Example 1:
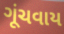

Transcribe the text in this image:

ગૂંચવાય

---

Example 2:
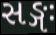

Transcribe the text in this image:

સઙ્ગઃ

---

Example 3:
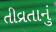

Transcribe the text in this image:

તીવ્રતાનું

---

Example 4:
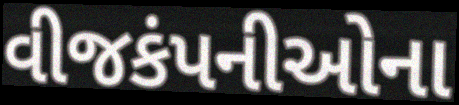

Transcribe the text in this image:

વીજકંપનીઓના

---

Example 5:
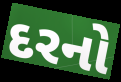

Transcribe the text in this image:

દરનો